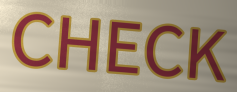
CHECK